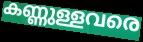
കണ്ണുള്ളവരെ